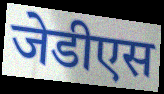
जेडीएस